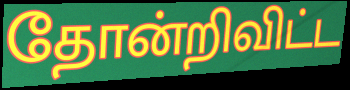
தோன்றிவிட்ட